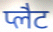
प्लैट